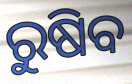
ରୁଷିବ